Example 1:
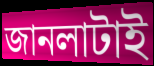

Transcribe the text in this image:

জানলাটাই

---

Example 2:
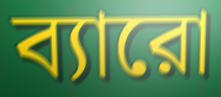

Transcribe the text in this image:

ব্যারো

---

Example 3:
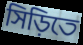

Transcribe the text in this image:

সিড়িতে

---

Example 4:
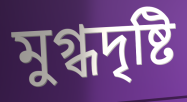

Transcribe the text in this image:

মুগ্ধদৃষ্টি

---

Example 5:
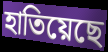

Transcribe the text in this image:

হাতিয়েছে